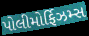
પોલીમોર્ફિઝમ્સ